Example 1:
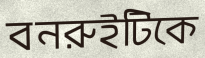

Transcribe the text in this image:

বনরুইটিকে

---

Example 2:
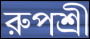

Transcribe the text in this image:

রুপশ্রী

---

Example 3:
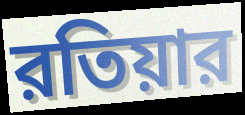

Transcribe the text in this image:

রতিয়ার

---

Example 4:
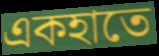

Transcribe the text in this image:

একহাতে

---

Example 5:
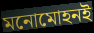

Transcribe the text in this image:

মনোমোহনই